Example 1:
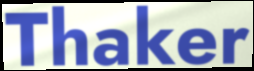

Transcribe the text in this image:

Thaker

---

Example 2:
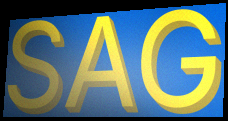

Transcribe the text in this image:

SAG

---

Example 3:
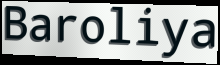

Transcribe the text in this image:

Baroliya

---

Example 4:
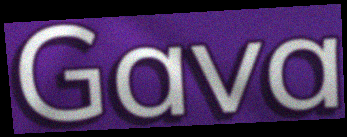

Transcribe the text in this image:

Gava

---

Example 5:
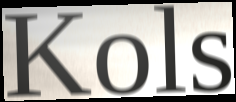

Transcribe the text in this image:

Kols